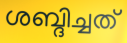
ശബ്ദിച്ചത്